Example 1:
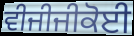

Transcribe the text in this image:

ਵੀਜੀਜੀਕੋਈ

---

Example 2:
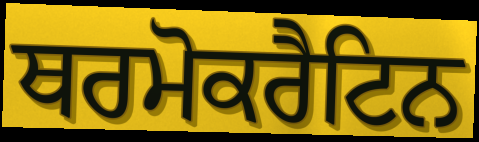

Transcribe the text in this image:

ਥਰਮੋਕਰੈਟਿਨ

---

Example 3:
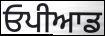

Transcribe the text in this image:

ਓਪੀਆਡ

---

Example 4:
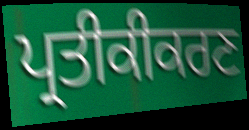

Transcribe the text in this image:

ਪ੍ਰਤੀਕੀਕਰਣ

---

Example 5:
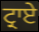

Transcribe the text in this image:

ਟ੍ਰਾਏ